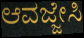
ಆವಜ್ಜೇಸಿ